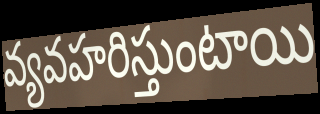
వ్యవహరిస్తుంటాయి